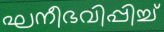
ഘനീഭവിപ്പിച്ച്